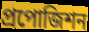
প্রপোজিশন